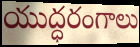
యుద్ధరంగాలు